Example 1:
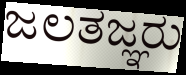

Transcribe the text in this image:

ಜಲತಜ್ಞರು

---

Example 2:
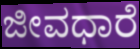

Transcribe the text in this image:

ಜೀವಧಾರೆ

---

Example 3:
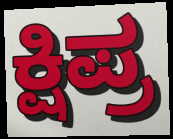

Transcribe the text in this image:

ಕ್ಷಿಪ್ರ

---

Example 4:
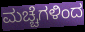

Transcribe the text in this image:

ಮಚ್ಚೆಗಳಿಂದ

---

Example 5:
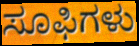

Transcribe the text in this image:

ಸೂಫಿಗಳು